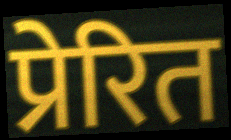
प्रेरित